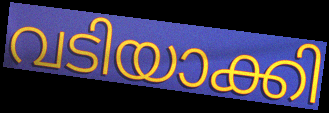
വടിയാക്കി